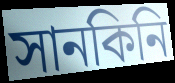
সানকিনি